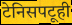
टेनिसपटूही